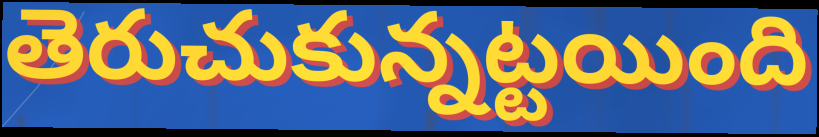
తెరుచుకున్నట్టయింది